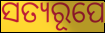
ସତ୍ୟରୂପେ